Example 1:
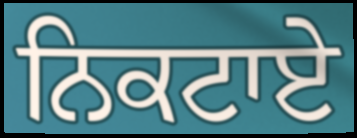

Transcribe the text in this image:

ਨਿਕਟਾਏ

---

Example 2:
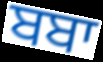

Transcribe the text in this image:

ਬਬਾ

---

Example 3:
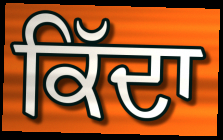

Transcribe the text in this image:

ਕਿੱਦਾ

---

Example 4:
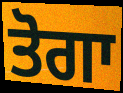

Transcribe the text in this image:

ਤੋਗਾ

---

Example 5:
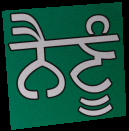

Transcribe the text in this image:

ਨੈਣੂੰ